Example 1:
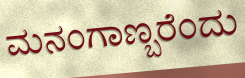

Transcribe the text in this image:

ಮನಂಗಾಣ್ಬರೆಂದು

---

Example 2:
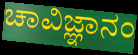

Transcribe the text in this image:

ಚಾವಿಜ್ಞಾನಂ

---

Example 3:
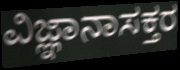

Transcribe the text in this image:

ವಿಜ್ಞಾನಾಸಕ್ತರ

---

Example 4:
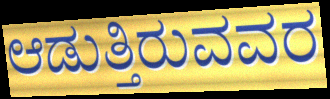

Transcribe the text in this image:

ಆಡುತ್ತಿರುವವರ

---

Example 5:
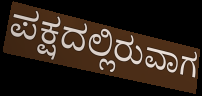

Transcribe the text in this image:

ಪಕ್ಷದಲ್ಲಿರುವಾಗ